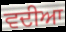
ਵਦੀਆ